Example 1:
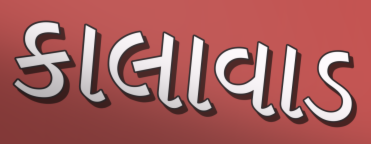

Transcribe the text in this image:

કાલાવાડ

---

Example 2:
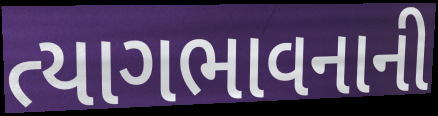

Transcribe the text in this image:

ત્યાગભાવનાની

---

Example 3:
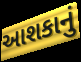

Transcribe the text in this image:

આશકાનું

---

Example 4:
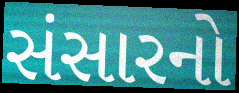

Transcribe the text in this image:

સંસારનો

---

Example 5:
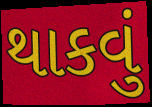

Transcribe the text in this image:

થાકવું